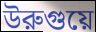
উরুগুয়ে